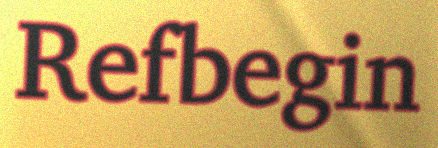
Refbegin